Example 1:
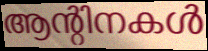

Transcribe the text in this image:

ആന്റിനകൾ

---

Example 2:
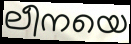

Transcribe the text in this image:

ലീനയെ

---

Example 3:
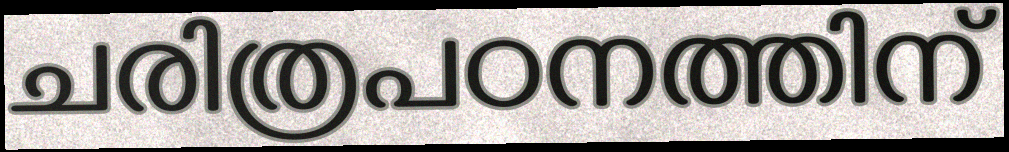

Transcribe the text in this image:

ചരിത്രപഠനത്തിന്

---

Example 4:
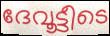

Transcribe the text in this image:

ദേവൂട്ടീടെ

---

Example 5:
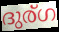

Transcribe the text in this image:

ദുര്ഗ